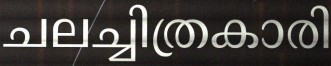
ചലച്ചിത്രകാരി